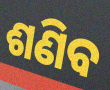
ଶଣିବ